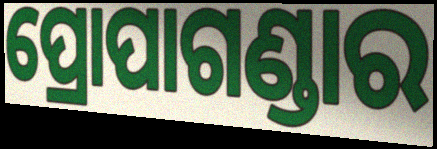
ପ୍ରୋପାଗଣ୍ଡାର